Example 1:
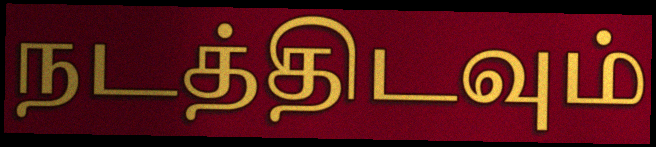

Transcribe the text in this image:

நடத்திடவும்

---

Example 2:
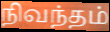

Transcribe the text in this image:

நிவந்தம்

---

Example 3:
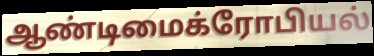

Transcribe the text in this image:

ஆண்டிமைக்ரோபியல்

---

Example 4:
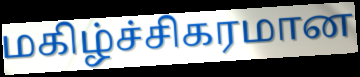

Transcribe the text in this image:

மகிழ்ச்சிகரமான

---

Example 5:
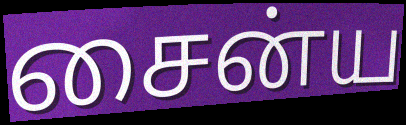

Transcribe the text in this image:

சைன்ய